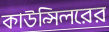
কাউন্সিলরের